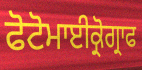
ਫੋਟੋਮਾਈਕ੍ਰੋਗ੍ਰਾਫ